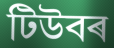
টিউবৰ